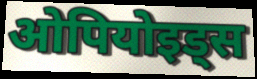
ओपियोइड्स